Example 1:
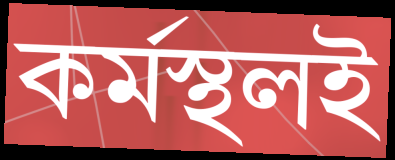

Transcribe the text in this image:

কর্মস্থলই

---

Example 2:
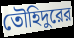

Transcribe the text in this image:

তৌহিদুরের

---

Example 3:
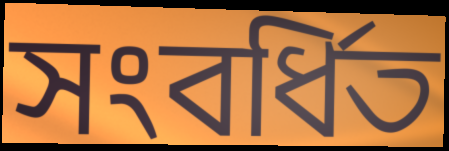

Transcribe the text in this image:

সংবর্ধিত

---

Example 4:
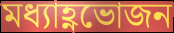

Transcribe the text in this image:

মধ্যাহ্ণভোজন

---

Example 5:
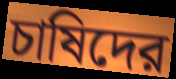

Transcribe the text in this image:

চাষিদের